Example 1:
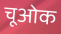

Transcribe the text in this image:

चूओक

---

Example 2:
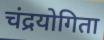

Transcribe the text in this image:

चंद्रयोगिता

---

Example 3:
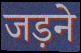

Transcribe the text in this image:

जड़ने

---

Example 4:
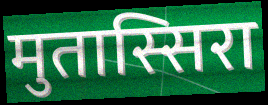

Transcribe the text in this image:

मुतास्सिरा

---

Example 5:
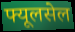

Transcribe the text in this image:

फ्यूलसेल